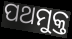
ପଥମୁକ୍ତ